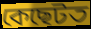
কেছেটত